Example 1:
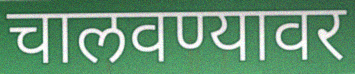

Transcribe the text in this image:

चालवण्यावर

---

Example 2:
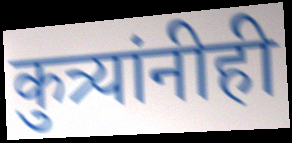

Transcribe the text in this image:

कुत्र्यांनीही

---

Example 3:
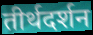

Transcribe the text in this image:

तीर्थदर्शन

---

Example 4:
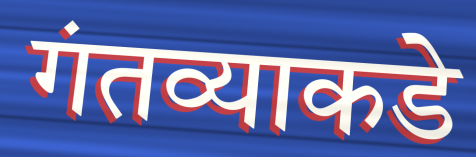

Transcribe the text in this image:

गंतव्याकडे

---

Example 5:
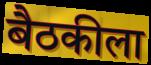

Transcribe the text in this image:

बैठकीला